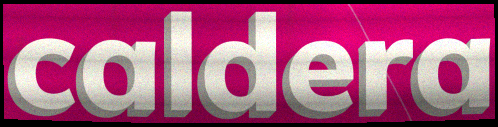
caldera